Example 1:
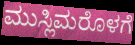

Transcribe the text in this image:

ಮುಸ್ಲಿಮರೊಳಗೆ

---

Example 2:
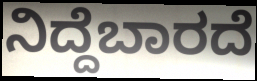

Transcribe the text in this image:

ನಿದ್ದೆಬಾರದೆ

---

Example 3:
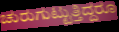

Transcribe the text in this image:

ಚುರುಗುಟ್ಟುತ್ತಿದ್ದರೂ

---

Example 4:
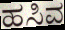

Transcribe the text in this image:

ಹಸಿವ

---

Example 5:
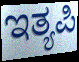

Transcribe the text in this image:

ಇತ್ಯಪಿ